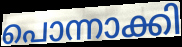
പൊന്നാക്കി